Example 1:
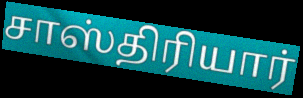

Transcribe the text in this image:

சாஸ்திரியார்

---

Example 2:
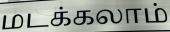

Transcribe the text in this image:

மடக்கலாம்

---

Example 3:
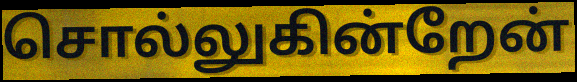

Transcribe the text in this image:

சொல்லுகின்றேன்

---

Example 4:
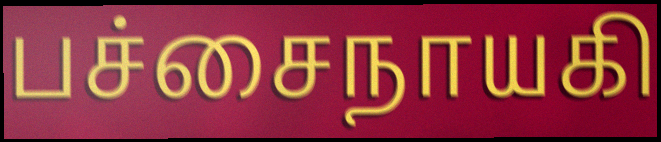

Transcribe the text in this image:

பச்சைநாயகி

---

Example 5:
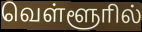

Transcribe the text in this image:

வெள்ளூரில்